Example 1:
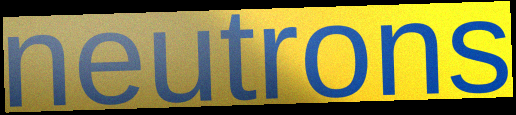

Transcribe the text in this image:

neutrons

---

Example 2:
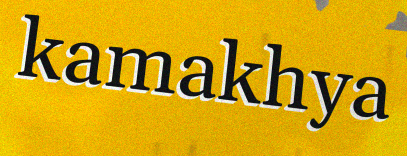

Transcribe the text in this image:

kamakhya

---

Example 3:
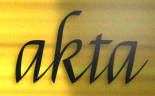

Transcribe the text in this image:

akta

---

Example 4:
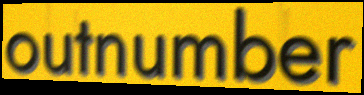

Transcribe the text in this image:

outnumber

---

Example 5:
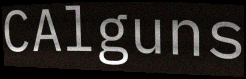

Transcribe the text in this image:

CAlguns